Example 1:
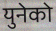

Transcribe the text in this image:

युनेको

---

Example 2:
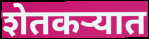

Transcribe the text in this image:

शेतकऱ्यात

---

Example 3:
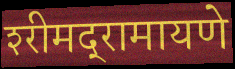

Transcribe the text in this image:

श्रीमद्‌रामायणे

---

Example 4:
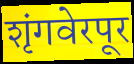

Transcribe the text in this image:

शृंगवेरपूर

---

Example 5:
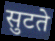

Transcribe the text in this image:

सुटते